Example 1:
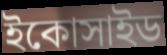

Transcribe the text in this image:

ইকোসাইড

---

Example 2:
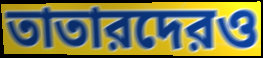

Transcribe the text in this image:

তাতারদেরও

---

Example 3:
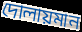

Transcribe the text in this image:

দোলায়মান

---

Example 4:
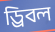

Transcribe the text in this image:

ড্রিবল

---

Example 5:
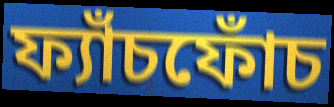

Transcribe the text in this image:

ফ্যাঁচফোঁচ